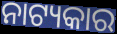
ନାଟ୍ୟକାର